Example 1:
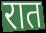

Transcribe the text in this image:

रात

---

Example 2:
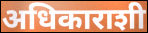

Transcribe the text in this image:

अधिकाराशी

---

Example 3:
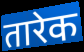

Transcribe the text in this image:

तारेक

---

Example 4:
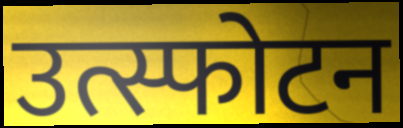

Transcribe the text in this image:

उत्स्फोटन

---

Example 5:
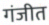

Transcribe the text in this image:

गंजीत